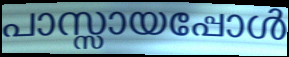
പാസ്സായപ്പോൾ